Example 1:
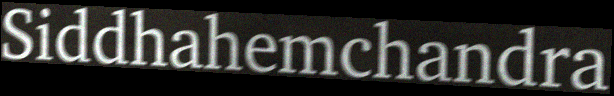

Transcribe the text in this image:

Siddhahemchandra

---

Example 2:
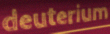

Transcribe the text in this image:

deuterium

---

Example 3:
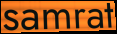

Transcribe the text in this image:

samrat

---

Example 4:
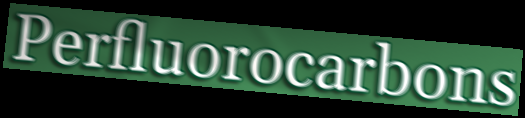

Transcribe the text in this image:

Perfluorocarbons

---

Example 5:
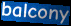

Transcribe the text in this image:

balcony